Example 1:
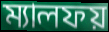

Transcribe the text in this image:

ম্যালফয়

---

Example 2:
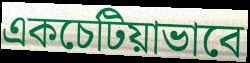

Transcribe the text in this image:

একচেটিয়াভাবে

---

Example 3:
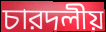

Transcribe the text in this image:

চারদলীয়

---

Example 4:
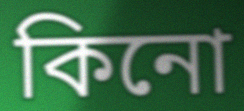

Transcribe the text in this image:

কিনো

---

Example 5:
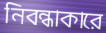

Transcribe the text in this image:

নিবন্ধাকারে